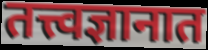
तत्त्वज्ञानात